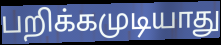
பறிக்கமுடியாது